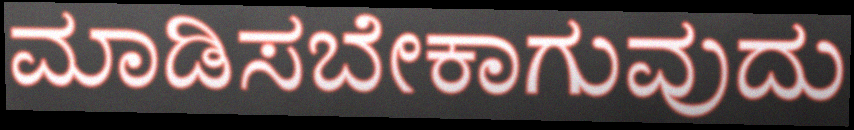
ಮಾಡಿಸಬೇಕಾಗುವುದು